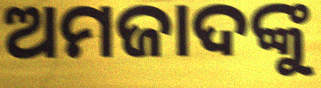
ଅମଜାଦଙ୍କୁ